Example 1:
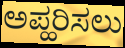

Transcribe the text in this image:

ಅಪ್ಹರಿಸಲು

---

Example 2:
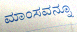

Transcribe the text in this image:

ಮಾಂಸವನ್ನೂ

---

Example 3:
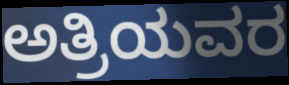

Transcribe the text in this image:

ಅತ್ರಿಯವರ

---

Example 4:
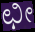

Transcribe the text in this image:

ಛೀ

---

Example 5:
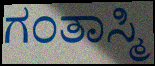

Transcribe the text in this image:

ಗಂತಾಸ್ಮಿ